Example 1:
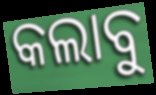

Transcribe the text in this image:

କଲାବୁ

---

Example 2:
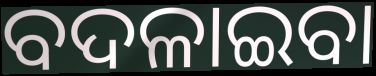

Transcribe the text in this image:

ବଦଳାଇବା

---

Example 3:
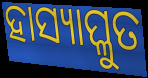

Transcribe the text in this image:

ହାସ୍ୟାପ୍ଳୁତ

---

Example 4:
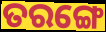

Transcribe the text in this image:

ତରଙ୍ଗେ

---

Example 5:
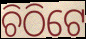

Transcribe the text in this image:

ଚିଠିଟେ